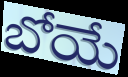
బోయే